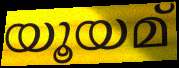
യൂയമ്